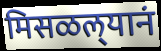
मिसळल्यानं